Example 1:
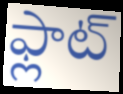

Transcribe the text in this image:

ఫ్లాట్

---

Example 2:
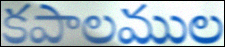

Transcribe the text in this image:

కపాలముల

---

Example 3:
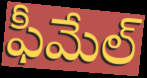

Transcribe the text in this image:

ఫీమేల్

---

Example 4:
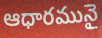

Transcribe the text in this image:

ఆధారమునై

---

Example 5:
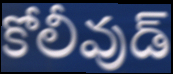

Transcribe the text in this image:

కోలీవుడ్